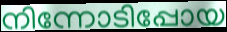
നിന്നോടിപ്പോയ